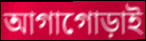
আগাগোড়াই